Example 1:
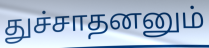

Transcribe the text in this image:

துச்சாதனனும்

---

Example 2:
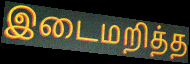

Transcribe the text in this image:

இடைமறித்த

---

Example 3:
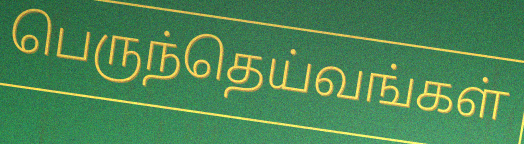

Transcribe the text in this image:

பெருந்தெய்வங்கள்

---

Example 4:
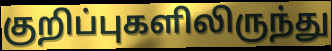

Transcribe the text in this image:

குறிப்புகளிலிருந்து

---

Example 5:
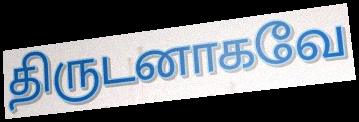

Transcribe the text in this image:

திருடனாகவே